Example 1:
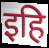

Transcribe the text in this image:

इहि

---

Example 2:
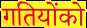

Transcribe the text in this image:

गतियोंको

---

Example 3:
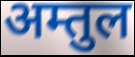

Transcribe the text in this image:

अम्तुल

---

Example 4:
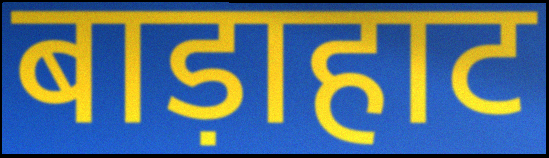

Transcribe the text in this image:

बाड़ाहाट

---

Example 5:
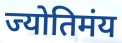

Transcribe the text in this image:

ज्योतिमंय